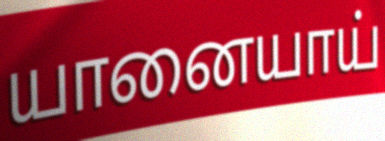
யானையாய்